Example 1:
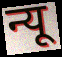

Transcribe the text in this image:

न्यू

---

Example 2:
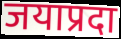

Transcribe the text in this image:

जयाप्रदा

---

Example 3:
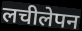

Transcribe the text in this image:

लचीलेपन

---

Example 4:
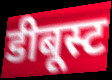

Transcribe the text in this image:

डीबूस्ट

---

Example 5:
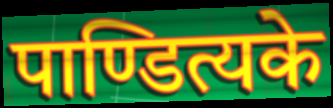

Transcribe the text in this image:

पाण्डित्यके